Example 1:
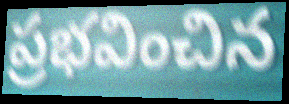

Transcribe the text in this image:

ప్రభవించిన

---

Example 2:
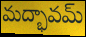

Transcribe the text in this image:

మద్భావమ్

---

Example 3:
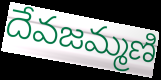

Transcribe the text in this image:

దేవజమ్మణి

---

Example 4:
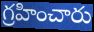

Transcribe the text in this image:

గ్రహించారు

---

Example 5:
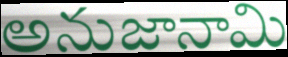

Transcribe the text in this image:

అనుజానామి